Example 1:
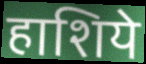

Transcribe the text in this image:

हाशिये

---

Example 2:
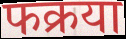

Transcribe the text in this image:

फक्रया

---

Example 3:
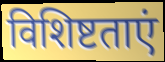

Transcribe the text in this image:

विशिष्टताएं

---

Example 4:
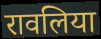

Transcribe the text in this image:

रावलिया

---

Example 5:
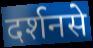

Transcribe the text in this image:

दर्शनसे